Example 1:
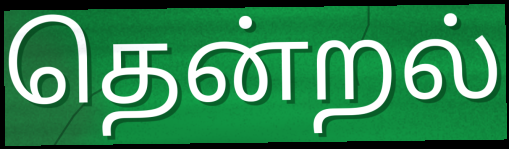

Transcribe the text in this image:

தென்றல்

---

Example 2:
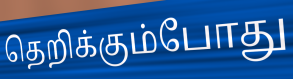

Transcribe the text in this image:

தெறிக்கும்போது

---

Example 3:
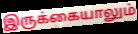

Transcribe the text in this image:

இருக்கையாலும்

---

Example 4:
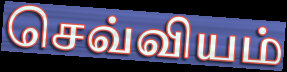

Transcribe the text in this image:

செவ்வியம்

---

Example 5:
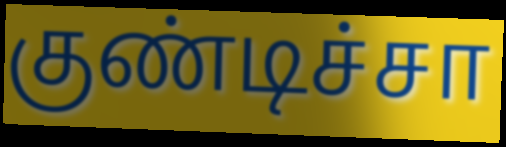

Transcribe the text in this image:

குண்டிச்சா